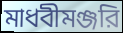
মাধবীমঞ্জরি